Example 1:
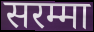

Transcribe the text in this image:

सरम्मा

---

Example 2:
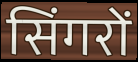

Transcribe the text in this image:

सिंगरों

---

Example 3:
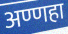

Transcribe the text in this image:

अण्णहा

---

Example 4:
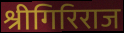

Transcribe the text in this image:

श्रीगिरिराज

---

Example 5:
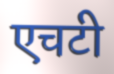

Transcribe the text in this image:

एचटी